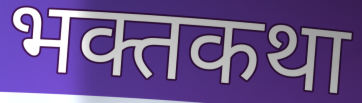
भक्तकथा